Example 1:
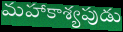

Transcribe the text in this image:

మహాకాశ్యపుడు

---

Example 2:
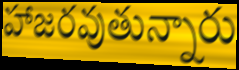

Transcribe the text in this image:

హాజరవుతున్నారు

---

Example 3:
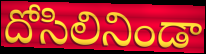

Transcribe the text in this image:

దోసిలినిండా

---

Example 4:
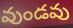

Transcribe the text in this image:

వుండవు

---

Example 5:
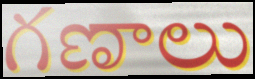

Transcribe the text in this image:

గణాలు